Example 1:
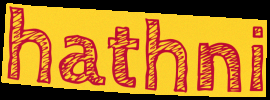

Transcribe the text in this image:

hathni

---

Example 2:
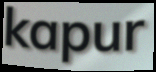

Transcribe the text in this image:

kapur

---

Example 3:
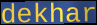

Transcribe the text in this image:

dekhar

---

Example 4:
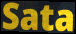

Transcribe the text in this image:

Sata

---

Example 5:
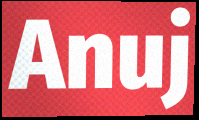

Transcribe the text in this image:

Anuj